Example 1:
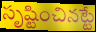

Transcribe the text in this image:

సృష్టించినట్టే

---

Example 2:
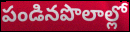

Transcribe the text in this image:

పండినపొలాల్లో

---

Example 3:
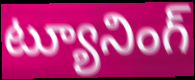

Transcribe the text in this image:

ట్యూనింగ్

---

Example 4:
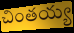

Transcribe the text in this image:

చింతయ్య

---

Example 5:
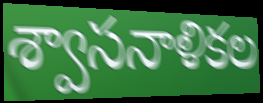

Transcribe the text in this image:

శ్వాసనాళికల